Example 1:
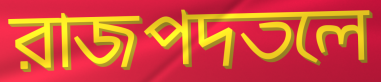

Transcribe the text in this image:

রাজপদতলে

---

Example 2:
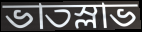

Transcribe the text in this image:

ভাতস্লাভ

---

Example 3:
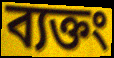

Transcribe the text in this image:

ব্যক্তং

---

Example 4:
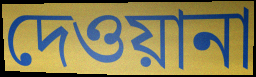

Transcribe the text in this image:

দেওয়ানা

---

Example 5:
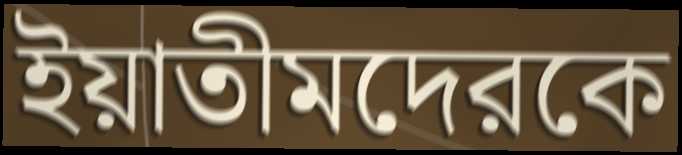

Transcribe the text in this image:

ইয়াতীমদেরকে